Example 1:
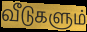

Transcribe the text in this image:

வீடுகளும்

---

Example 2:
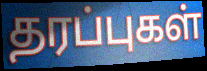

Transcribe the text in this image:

தரப்புகள்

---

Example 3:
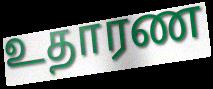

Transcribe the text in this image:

உதாரண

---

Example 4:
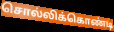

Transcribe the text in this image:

சொல்லிக்கொண்டி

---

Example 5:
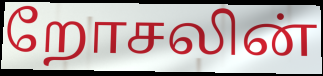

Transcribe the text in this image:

றோசலின்